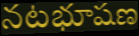
నటభూషణ